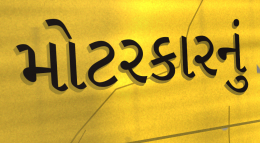
મોટરકારનું